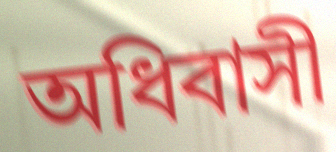
অধিবাসী